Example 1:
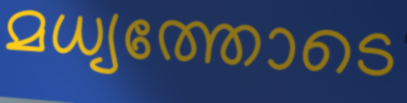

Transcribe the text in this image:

മധ്യത്തോടെ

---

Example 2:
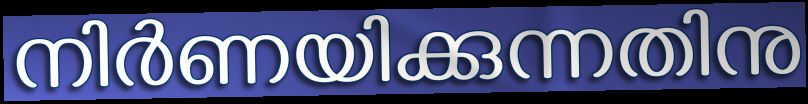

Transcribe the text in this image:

നിർണയിക്കുന്നതിനു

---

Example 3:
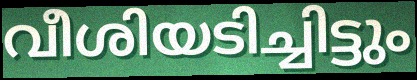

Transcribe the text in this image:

വീശിയടിച്ചിട്ടും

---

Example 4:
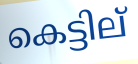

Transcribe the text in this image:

കെട്ടില്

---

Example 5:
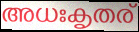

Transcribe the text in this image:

അധഃകൃതര്